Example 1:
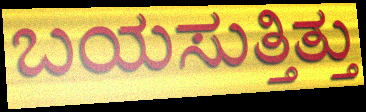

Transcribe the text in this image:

ಬಯಸುತ್ತಿತ್ತು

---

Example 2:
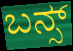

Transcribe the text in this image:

ಬನ್ಸ್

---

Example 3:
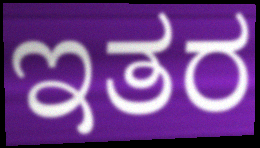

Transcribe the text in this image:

ಇತರ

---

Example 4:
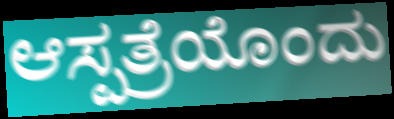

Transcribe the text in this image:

ಆಸ್ಪತ್ರೆಯೊಂದು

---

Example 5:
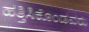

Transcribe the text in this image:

ಹತ್ತಿಸಿಕೊಂಡವರು